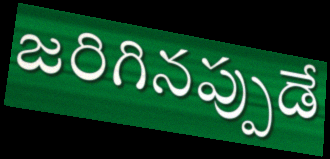
జరిగినప్పుడే